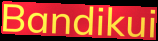
Bandikui